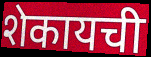
शेकायची